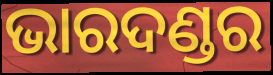
ଭାରଦଣ୍ଡର